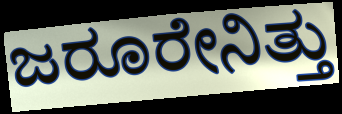
ಜರೂರೇನಿತ್ತು